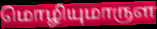
மொழியுமாருள